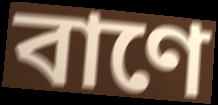
বাণে